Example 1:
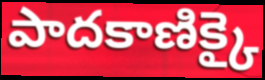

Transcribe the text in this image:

పాదకాణిక్కై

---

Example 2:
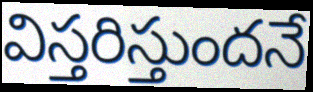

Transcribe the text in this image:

విస్తరిస్తుందనే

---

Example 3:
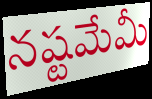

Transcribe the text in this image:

నష్టమేమీ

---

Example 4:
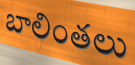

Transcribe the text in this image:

బాలింతలు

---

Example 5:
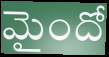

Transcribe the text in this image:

మైందో